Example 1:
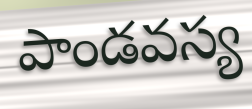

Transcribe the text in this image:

పాండవస్య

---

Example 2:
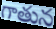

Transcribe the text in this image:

గాతున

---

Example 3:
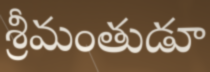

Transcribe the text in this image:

శ్రీమంతుడూ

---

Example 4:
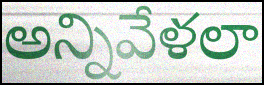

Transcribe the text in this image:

అన్నివేళలా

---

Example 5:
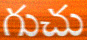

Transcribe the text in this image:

గుచు